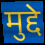
मुद्दे